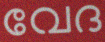
വേദ